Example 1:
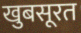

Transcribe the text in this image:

खुबसूरत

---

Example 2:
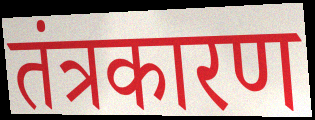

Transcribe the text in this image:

तंत्रकारण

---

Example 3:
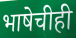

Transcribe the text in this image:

भाषेचीही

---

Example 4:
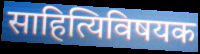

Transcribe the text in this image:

साहित्यिविषयक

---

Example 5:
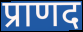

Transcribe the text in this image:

प्राणद